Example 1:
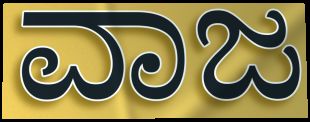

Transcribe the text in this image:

ವಾಜ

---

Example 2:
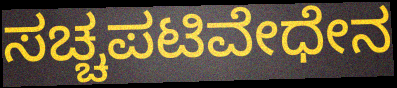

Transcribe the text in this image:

ಸಚ್ಚಪಟಿವೇಧೇನ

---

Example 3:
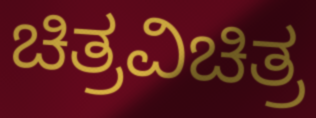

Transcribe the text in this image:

ಚಿತ್ರವಿಚಿತ್ರ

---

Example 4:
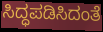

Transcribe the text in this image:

ಸಿದ್ಧಪಡಿಸಿದಂತೆ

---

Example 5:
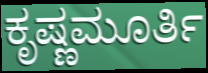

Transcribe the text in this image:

ಕೃಷ್ಣಮೂರ್ತಿ